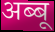
अब्बू